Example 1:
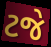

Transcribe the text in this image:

ટજે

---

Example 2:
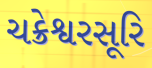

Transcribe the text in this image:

ચક્રેશ્વરસૂરિ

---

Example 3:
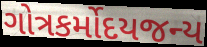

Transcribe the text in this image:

ગોત્રકર્મોદયજન્ય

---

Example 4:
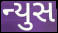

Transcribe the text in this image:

ન્યુસ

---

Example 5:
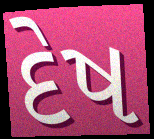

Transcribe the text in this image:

દેષ